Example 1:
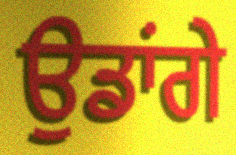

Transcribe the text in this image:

ਉਡਾਂਗੇ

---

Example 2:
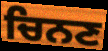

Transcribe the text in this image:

ਚਿਨਣ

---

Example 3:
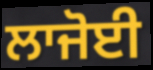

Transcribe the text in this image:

ਲਾਜੋਈ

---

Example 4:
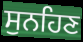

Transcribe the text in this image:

ਸੁਨਹਿਣ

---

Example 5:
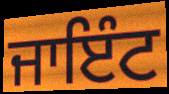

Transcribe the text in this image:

ਜਾਇੰਟ